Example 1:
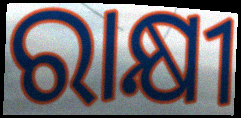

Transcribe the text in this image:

ରାକ୍ଷୀ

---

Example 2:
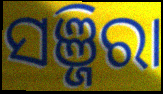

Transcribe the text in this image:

ସଞ୍ଜିରା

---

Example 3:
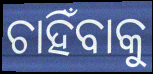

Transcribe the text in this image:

ଚାହିଁବାକୁ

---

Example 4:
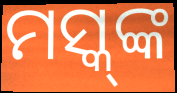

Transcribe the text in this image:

ମସ୍କ୍‌ଙ୍କ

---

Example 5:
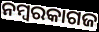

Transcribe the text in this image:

ନମ୍ବରକାଗଜ